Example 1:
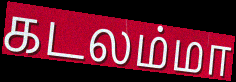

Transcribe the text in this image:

கடலம்மா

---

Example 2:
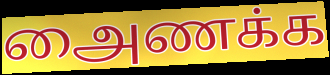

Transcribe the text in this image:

அைணக்க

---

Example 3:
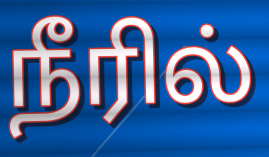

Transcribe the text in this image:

நீரில்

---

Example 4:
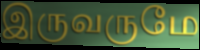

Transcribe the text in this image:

இருவருமே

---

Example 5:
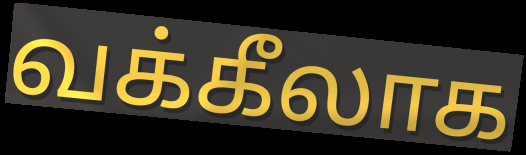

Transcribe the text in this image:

வக்கீலாக